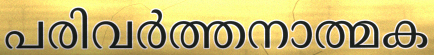
പരിവർത്തനാത്മക